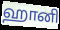
ஹானி